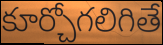
కూర్చోగలిగితే